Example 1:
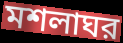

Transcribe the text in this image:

মশলাঘর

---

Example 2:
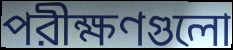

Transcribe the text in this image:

পরীক্ষণগুলো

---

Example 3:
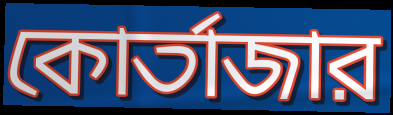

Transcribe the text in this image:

কোর্তাজার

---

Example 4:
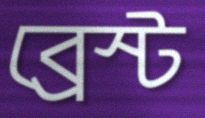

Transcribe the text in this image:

ব্রেস্ট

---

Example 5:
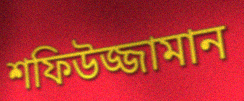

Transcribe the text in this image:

শফিউজ্জামান